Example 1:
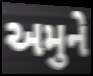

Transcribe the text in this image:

અમુને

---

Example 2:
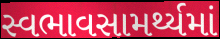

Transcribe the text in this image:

સ્વભાવસામર્થ્યમાં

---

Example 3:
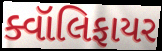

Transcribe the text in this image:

ક્વૉલિફાયર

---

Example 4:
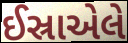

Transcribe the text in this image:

ઈસ્રાએલે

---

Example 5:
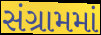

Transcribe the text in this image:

સંગ્રામમાં